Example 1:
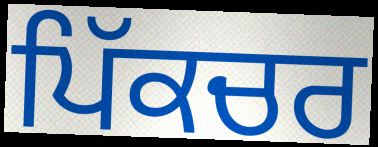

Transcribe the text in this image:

ਪਿੱਕਚਰ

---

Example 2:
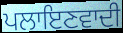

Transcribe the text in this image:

ਪਲਾਇਣਵਾਦੀ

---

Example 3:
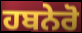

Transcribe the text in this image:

ਹਬਨੇਰੋ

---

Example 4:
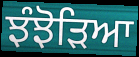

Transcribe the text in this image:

ਝੰਝੋੜਿਆ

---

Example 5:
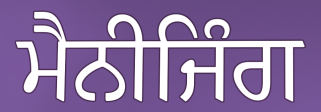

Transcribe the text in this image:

ਮੈਨੀਜਿੰਗ